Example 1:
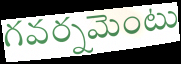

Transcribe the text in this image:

గవర్నమెంటు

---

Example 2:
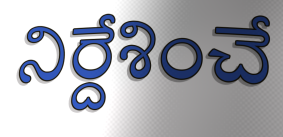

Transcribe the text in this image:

నిర్దేశించే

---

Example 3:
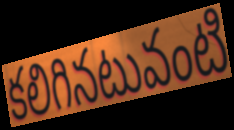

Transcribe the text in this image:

కలిగినటువంటి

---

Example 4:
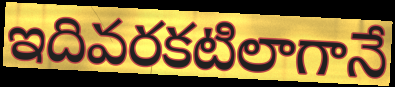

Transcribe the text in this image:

ఇదివరకటిలాగానే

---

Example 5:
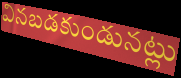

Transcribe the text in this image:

వినబడకుండునట్లు